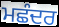
ਮਛੰਦਰ